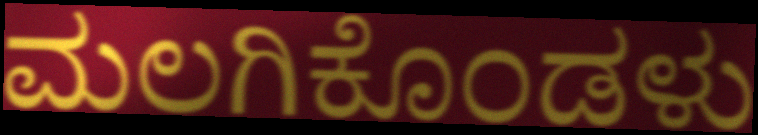
ಮಲಗಿಕೊಂಡಳು